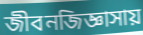
জীবনজিজ্ঞাসায়